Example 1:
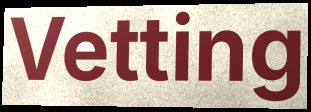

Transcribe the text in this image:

Vetting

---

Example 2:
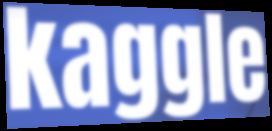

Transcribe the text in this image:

kaggle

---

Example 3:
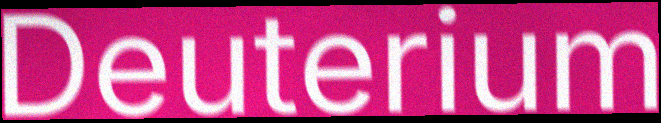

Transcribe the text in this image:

Deuterium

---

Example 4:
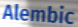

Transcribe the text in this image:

Alembic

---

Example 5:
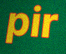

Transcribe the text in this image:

pir